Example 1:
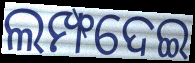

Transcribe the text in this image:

ଲମ୍ଫଦେଇ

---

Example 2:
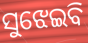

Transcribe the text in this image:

ସୁଝେଇବି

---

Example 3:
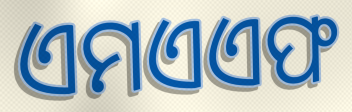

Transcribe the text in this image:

ଏମଏଏଫ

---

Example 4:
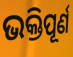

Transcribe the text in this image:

ଭକ୍ତିପୂର୍ଣ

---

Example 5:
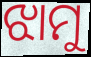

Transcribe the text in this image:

ଝାମୁ